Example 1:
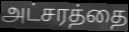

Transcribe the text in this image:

அட்சரத்தை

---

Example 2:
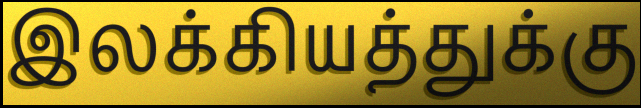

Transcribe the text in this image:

இலக்கியத்துக்கு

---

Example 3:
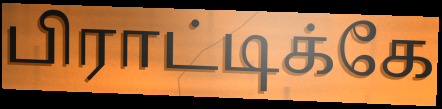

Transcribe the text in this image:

பிராட்டிக்கே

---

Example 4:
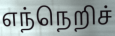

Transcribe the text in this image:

எந்நெறிச்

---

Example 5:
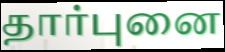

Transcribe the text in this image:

தார்புனை